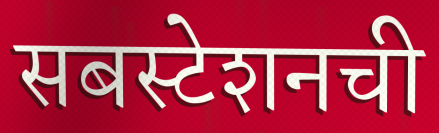
सबस्टेशनची